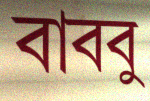
বাববু